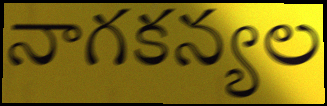
నాగకన్యల